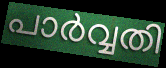
പാർവ്വതി